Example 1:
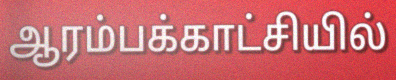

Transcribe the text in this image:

ஆரம்பக்காட்சியில்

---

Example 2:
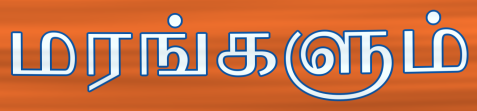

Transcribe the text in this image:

மரங்களும்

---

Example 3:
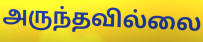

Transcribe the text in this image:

அருந்தவில்லை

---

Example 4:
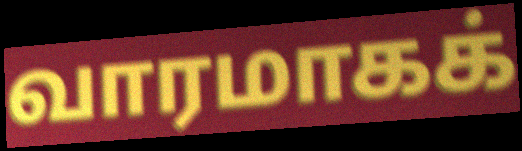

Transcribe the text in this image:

வாரமாகக்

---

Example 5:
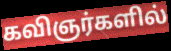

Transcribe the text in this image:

கவிஞர்களில்